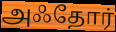
அஃதோர்